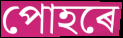
পোহৰে